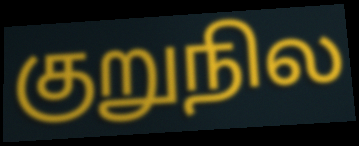
குறுநில